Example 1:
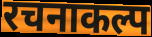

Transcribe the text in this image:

रचनाकल्प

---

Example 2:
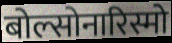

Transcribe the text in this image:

बोल्सोनारिस्मो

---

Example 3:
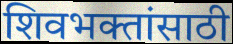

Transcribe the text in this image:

शिवभक्तांसाठी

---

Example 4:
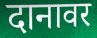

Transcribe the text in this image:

दानावर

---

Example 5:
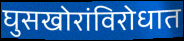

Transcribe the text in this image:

घुसखोरांविरोधात